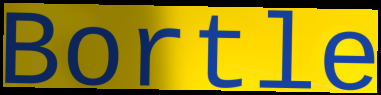
Bortle